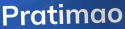
Pratimao